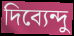
দিব্যেন্দু